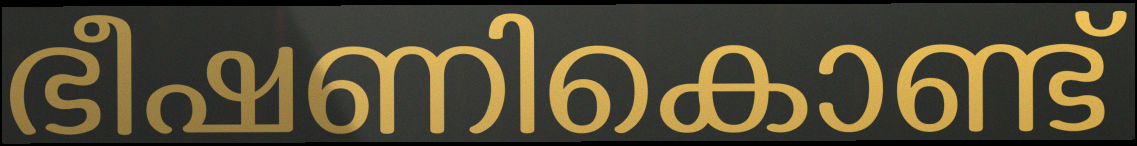
ഭീഷണികൊണ്ട്